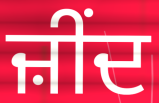
ਜ਼ੀਂਦ